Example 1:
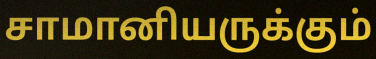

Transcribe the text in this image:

சாமானியருக்கும்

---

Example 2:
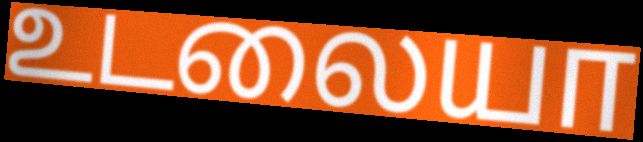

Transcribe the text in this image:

உடலையா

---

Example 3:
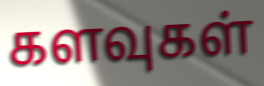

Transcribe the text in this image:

களவுகள்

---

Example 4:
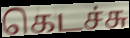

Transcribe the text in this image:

கெடச்சு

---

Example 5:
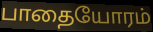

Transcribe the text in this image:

பாதையோரம்